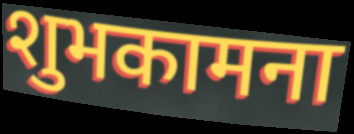
शुभकामना